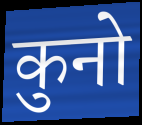
कुनो